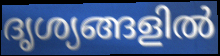
ദൃശ്യങ്ങളിൽ